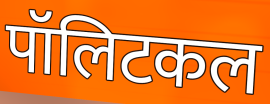
पॉलिटकल